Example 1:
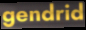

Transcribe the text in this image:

gendrid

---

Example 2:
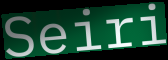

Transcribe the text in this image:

Seiri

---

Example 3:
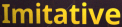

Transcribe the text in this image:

Imitative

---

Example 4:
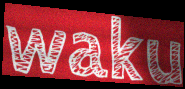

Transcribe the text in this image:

waku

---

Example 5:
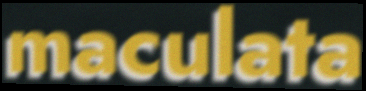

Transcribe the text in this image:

maculata